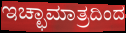
ಇಚ್ಛಾಮಾತ್ರದಿಂದ